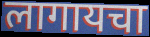
लागायचा